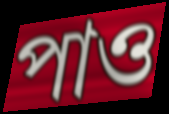
পাও